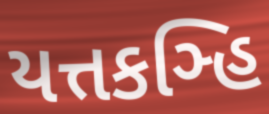
યત્તકઞ્હિ